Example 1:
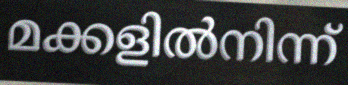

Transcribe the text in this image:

മക്കളിൽനിന്ന്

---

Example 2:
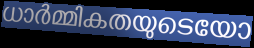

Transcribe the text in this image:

ധാർമ്മികതയുടെയോ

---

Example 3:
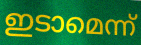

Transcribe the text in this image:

ഇടാമെന്ന്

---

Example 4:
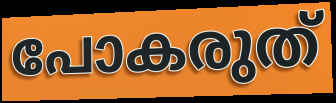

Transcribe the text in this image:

പോകരുത്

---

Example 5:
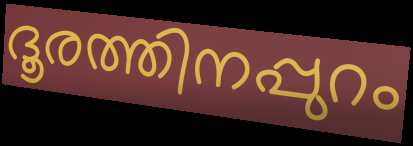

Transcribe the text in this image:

ദൂരത്തിനപ്പുറം